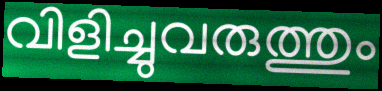
വിളിച്ചുവരുത്തും